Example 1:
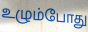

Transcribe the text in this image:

உழும்போது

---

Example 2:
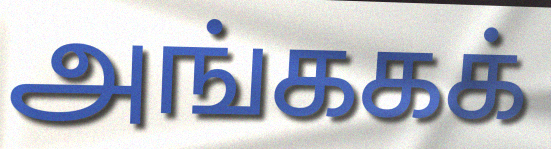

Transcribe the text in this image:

அங்ககக்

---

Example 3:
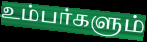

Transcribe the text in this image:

உம்பர்களும்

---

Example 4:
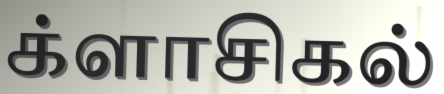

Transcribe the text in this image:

க்ளாசிகல்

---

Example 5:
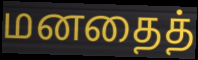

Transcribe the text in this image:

மனதைத்